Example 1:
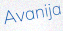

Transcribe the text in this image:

Avanija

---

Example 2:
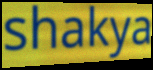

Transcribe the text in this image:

shakya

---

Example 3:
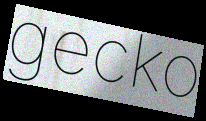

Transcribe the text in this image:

gecko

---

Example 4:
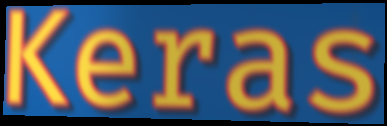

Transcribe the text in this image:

Keras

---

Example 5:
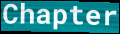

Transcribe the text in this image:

Chapter